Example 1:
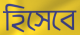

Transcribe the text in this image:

হিসেবে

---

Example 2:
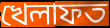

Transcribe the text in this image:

খেলাফত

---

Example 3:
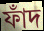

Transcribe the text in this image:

ফাঁদ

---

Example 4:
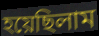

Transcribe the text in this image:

হয়েছিলাম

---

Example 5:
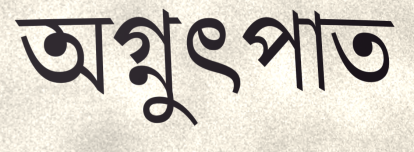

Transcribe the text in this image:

অগ্নুৎপাত